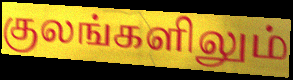
குலங்களிலும்